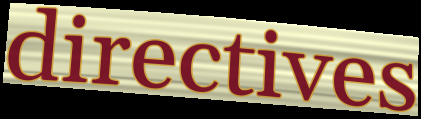
directives